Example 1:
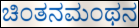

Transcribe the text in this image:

ಚಿಂತನಮಂಥನ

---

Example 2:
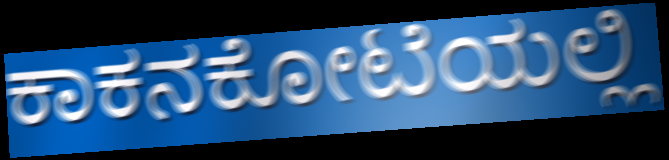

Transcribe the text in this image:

ಕಾಕನಕೋಟೆಯಲ್ಲಿ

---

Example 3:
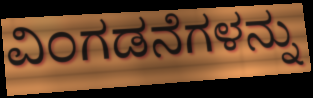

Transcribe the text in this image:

ವಿಂಗಡನೆಗಳನ್ನು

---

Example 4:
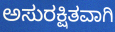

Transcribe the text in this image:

ಅಸುರಕ್ಷಿತವಾಗಿ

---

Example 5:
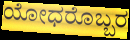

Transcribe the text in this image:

ಯೋಧರೊಬ್ಬರ